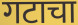
गटाचा